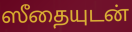
ஸீதையுடன்